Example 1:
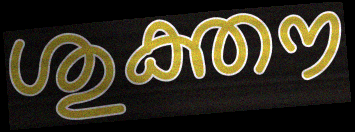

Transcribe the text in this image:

ശുക്തൗ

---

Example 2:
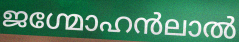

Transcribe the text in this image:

ജഗ്മോഹൻലാൽ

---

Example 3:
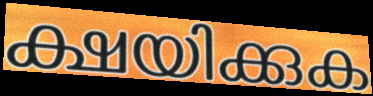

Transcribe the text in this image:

ക്ഷയിക്കുക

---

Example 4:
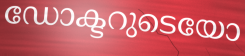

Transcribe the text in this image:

ഡോക്ടറുടെയോ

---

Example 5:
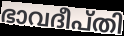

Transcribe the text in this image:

ഭാവദീപ്തി